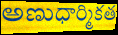
అణుధార్మికత